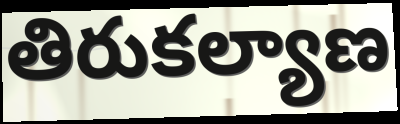
తిరుకల్యాణ